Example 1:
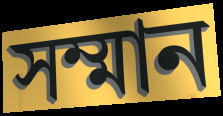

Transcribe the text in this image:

সম্মান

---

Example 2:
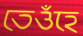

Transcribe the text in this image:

তেওঁহে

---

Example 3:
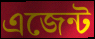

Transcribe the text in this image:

এজেন্ট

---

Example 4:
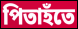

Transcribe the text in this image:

পিতাহঁতে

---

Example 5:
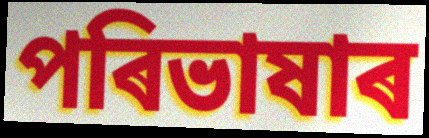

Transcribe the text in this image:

পৰিভাষাৰ